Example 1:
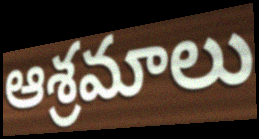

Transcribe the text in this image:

ఆశ్రమాలు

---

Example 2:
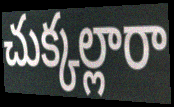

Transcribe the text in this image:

చుక్కల్లారా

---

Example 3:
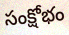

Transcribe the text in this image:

సంక్షోభం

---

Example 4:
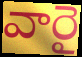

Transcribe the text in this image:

వారై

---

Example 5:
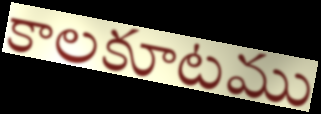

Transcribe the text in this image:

కాలకూటము